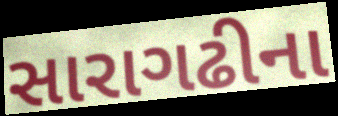
સારાગઢીના